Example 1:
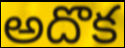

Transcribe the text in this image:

అదొక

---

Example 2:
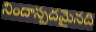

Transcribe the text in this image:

నిందాస్పదమైనది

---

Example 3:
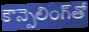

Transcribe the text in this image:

కౌన్సెలింగ్‌తో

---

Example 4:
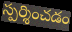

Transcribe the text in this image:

స్పర్శించడం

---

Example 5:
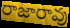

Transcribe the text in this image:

రాజారావు